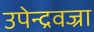
उपेन्द्रवज्रा